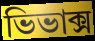
ভিভাক্স